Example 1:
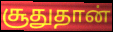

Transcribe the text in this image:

சூதுதான்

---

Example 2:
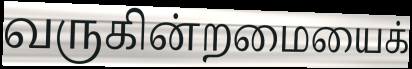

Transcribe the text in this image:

வருகின்றமையைக்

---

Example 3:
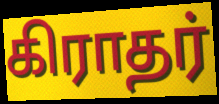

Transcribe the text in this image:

கிராதர்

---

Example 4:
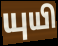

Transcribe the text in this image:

யுயி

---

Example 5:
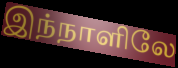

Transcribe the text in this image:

இந்நாளிலே